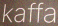
kaffa